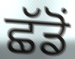
ਛੱਡੋਂ